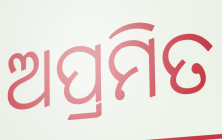
ଅପ୍ରମିତ